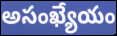
అసంఖ్యేయం